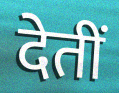
देतीं